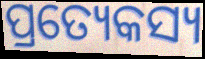
ପ୍ରତ୍ୟେକସ୍ୟ